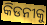
କିଡନୀକୁ